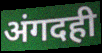
अंगदही